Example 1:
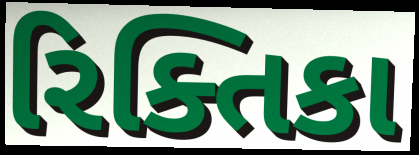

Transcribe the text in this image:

રિક્તિકા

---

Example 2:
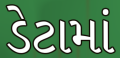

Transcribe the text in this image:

ડેટામાં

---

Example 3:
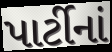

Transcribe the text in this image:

પાર્ટીનાં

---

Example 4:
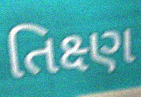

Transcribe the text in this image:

તિક્ષ્ણ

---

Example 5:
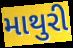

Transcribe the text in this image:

માથુરી